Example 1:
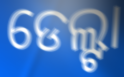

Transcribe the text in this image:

ଡେଲ୍ଟା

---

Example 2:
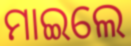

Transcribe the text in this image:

ମାଇଲେ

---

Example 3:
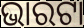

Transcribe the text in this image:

ଭାରଟା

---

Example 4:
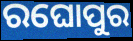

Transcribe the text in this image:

ରଘୋପୁର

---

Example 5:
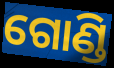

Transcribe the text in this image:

ଗୋଣ୍ଡି